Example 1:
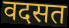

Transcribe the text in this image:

वदसत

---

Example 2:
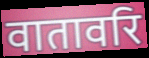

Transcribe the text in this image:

वातावरि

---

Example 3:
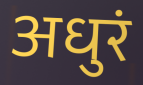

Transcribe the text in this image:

अधुरं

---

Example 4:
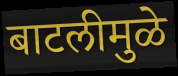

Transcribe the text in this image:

बाटलीमुळे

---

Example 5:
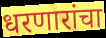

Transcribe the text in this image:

धरणारांचा